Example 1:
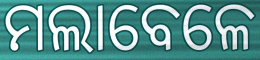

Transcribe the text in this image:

ମଲାବେଳେ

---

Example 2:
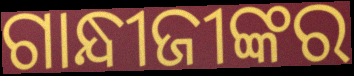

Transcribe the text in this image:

ଗାନ୍ଧୀଜୀଙ୍କର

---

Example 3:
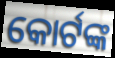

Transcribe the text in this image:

କୋର୍ଟଙ୍କ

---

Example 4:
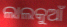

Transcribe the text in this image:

ଲାଲକୁଆଁ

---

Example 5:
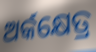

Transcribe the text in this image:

ଅର୍କକ୍ଷେତ୍ର